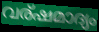
വര്ഷമാദ്യം